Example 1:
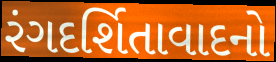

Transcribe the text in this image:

રંગદર્શિતાવાદનો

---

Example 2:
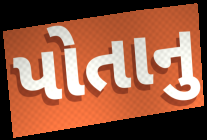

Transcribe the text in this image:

પોતાનુ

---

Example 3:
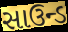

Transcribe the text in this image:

સાઉન્ડ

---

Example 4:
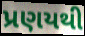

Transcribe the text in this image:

પ્રણયથી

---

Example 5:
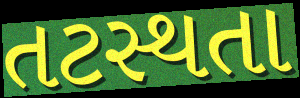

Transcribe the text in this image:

તટસ્થતા